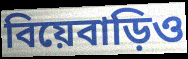
বিয়েবাড়িও